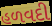
હળવદી